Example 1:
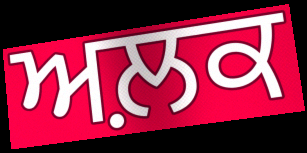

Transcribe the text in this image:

ਅਲ਼ਕ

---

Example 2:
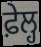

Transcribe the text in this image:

ਫ਼ੇਲ੍ਹ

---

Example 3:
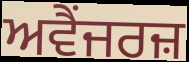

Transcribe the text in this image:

ਅਵੈਂਜਰਜ਼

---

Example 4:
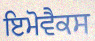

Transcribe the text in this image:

ਇਮੋਵੈਕਸ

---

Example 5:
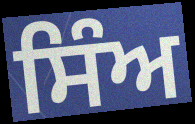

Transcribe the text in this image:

ਸਿੰਅ